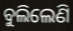
ବୁଲିଲେଣି